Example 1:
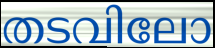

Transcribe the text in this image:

തടവിലോ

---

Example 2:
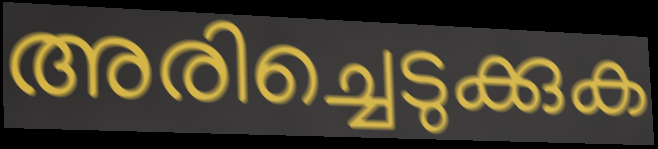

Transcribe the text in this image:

അരിച്ചെടുക്കുക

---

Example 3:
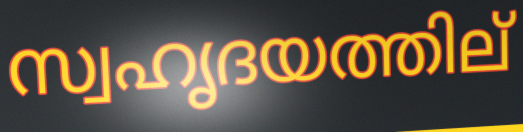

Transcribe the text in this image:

സ്വഹൃദയത്തില്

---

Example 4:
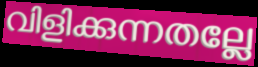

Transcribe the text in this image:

വിളിക്കുന്നതല്ലേ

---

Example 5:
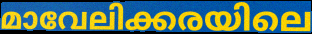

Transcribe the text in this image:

മാവേലിക്കരയിലെ